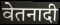
वेतनादी